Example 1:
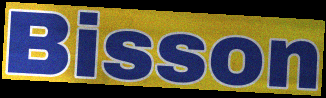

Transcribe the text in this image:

Bisson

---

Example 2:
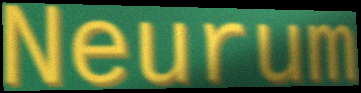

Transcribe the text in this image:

Neurum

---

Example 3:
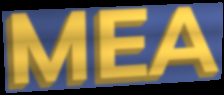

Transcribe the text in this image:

MEA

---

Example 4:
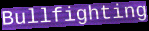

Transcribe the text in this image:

Bullfighting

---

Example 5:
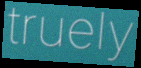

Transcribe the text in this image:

truely